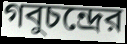
গবুচন্দ্রের